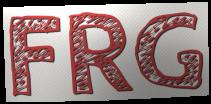
FRG